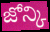
జోన్కి